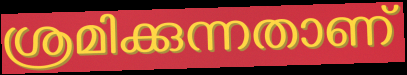
ശ്രമിക്കുന്നതാണ്